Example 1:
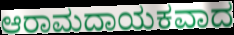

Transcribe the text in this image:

ಆರಾಮದಾಯಕವಾದ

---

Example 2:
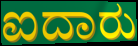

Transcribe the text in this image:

ಐದಾರು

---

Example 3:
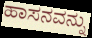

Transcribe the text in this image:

ಹಾಸನವನ್ನು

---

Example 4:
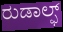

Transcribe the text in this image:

ರುಡಾಲ್ಫ್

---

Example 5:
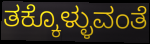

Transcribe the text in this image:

ತಕ್ಕೊಳ್ಳುವಂತೆ